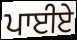
ਪਾਈਏ